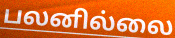
பலனில்லை